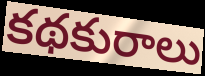
కథకురాలు